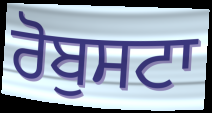
ਰੋਬੁਸਟਾ